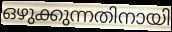
ഒഴുക്കുന്നതിനായി